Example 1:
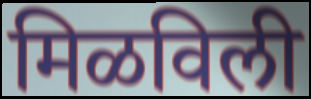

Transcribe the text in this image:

मिळविली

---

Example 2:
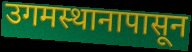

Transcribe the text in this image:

उगमस्थानापासून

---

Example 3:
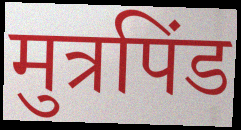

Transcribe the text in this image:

मुत्रपिंड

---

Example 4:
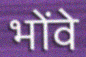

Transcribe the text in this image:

भोंवे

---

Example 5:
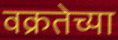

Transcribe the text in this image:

वक्रतेच्या